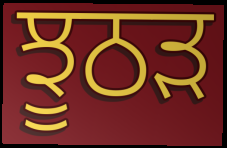
ਝੂਠੜ